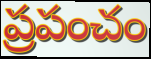
ప్రపంచం